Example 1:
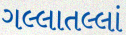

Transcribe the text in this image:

ગલ્લાતલ્લાં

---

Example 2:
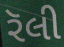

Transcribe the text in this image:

રૅલી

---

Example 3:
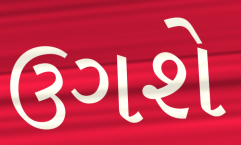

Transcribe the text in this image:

ઉગશે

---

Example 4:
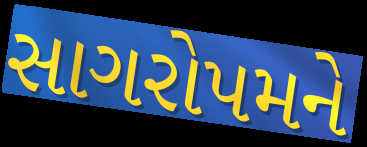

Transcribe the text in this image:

સાગરોપમને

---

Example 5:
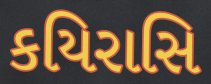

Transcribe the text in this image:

કયિરાસિ